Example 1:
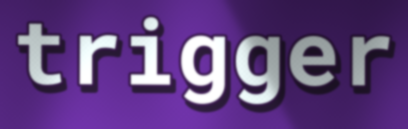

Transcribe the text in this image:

trigger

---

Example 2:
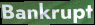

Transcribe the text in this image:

Bankrupt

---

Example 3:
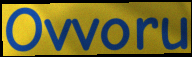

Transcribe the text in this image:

Ovvoru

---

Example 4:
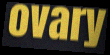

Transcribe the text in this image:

ovary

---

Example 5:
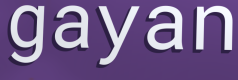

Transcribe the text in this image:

gayan